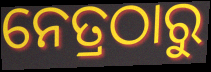
ନେତ୍ରଠାରୁ